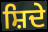
ਸ਼ਿਦੇ